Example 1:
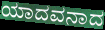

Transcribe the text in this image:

ಯಾದವನಾದ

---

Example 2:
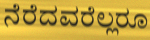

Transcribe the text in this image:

ನೆರೆದವರೆಲ್ಲರೂ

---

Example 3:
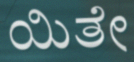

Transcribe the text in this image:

ಯಿತೇ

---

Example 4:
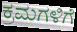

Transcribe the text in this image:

ಕ್ರಮಗಳಿಗೆ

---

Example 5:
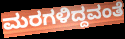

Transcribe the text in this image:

ಮರಗಳಿದ್ದವಂತೆ